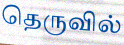
தெருவில்